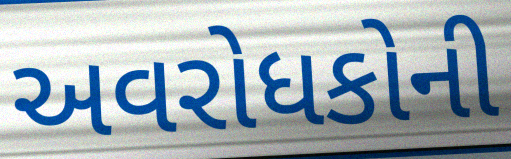
અવરોધકોની